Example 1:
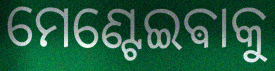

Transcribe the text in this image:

ମେଣ୍ଟେଇଵାକୁ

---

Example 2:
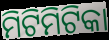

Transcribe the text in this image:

ମିଟିମିଟିକା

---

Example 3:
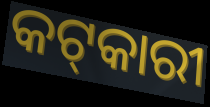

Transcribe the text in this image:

କଟ୍‌କାରୀ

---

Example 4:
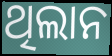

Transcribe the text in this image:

ଥିଲାନ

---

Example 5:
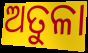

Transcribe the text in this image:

ଅତୁଳା